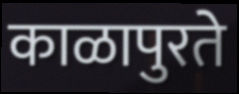
काळापुरते